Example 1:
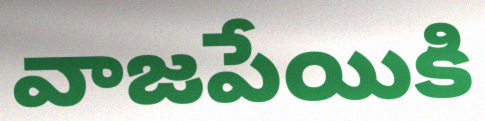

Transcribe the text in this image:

వాజపేయికి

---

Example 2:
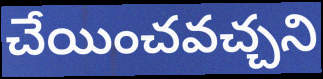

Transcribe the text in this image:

చేయించవచ్చని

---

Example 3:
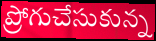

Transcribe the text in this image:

ప్రోగుచేసుకున్న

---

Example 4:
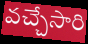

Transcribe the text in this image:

వచ్చేసారి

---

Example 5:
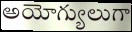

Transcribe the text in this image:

అయోగ్యులుగా